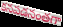
కనపడనంతగా